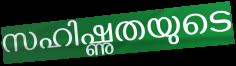
സഹിഷ്ണുതയുടെ